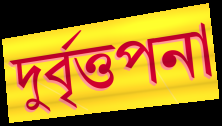
দুর্বৃত্তপনা